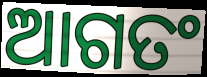
ଆଗତଂ